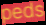
peds